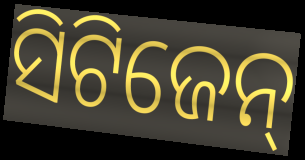
ସିଟିଜେନ୍